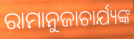
ରାମାନୁଜାଚାର୍ଯ୍ୟଙ୍କ